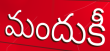
మందుకీ